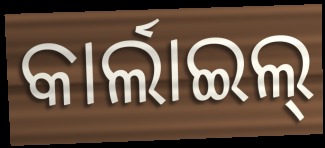
କାର୍ଲାଇଲ୍